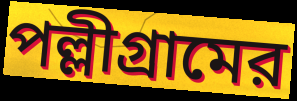
পল্লীগ্রামের